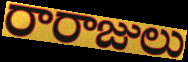
రారాజులు